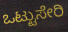
ಒಟ್ಟುಸೇರಿ